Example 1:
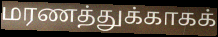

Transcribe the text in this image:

மரணத்துக்காகக்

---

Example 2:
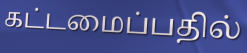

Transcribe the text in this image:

கட்டமைப்பதில்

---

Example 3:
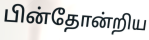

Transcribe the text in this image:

பின்தோன்றிய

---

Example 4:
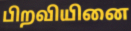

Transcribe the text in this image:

பிறவியினை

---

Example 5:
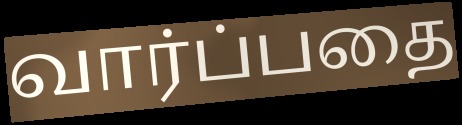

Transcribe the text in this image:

வார்ப்பதை